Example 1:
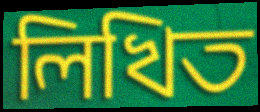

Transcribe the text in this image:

লিখিত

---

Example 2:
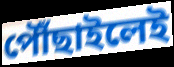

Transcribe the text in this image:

পৌঁছাইলেই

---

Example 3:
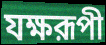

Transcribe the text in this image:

যক্ষরূপী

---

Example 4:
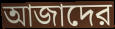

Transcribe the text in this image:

আজাদের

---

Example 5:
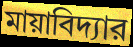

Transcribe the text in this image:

মায়াবিদ্যার